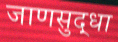
जाणसुद्धा